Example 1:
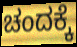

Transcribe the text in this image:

ಚಂದಕ್ಕೆ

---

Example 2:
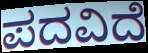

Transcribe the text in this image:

ಪದವಿದೆ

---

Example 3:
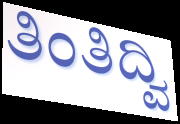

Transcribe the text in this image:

ತಿಂತಿದ್ವಿ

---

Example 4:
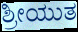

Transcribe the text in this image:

ಶ್ರೀಯುತ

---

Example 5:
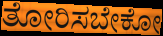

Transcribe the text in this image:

ತೋರಿಸಬೇಕೋ